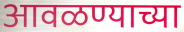
आवळण्याच्या